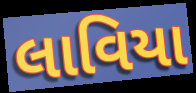
લાવિયા